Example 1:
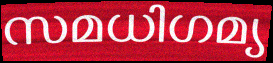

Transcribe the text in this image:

സമധിഗമ്യ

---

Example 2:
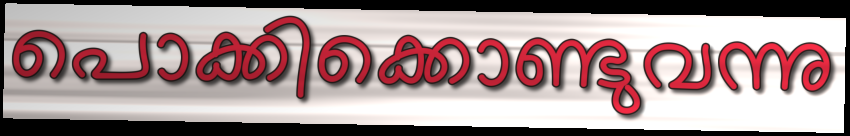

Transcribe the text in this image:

പൊക്കിക്കൊണ്ടുവന്നു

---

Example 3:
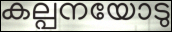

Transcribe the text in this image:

കല്പനയോടു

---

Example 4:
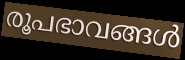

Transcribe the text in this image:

രൂപഭാവങ്ങൾ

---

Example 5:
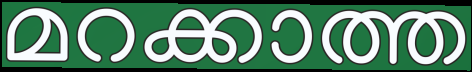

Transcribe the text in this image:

മറക്കാത്ത